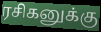
ரசிகனுக்கு